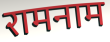
रामनाम